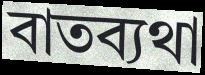
বাতব্যথা